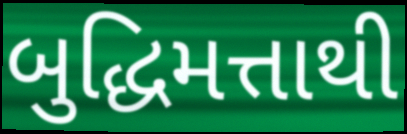
બુદ્ધિમત્તાથી